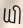
யி